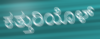
ಕತ್ತುರಿಯೊಳ್